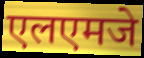
एलएमजे